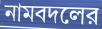
নামবদলের